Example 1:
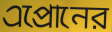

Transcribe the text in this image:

এপ্রোনের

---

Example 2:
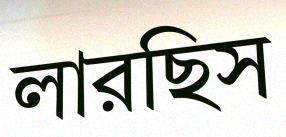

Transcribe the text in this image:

লারছিস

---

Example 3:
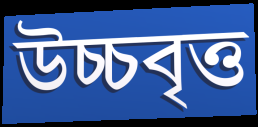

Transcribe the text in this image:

উচ্চবৃত্ত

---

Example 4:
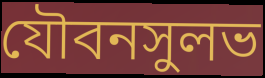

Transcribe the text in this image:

যৌবনসুলভ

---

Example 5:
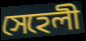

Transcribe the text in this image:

সেহেলী